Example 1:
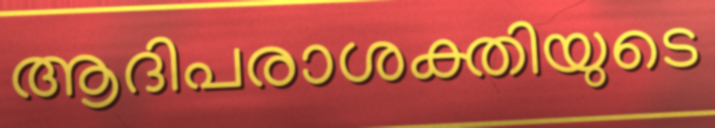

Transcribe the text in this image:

ആദിപരാശക്തിയുടെ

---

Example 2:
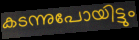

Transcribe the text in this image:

കടന്നുപോയിട്ടും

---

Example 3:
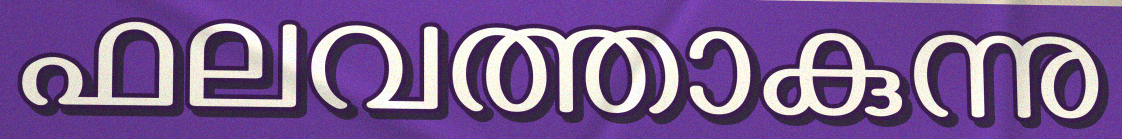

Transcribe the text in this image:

ഫലവത്താകുന്നു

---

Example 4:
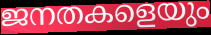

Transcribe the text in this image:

ജനതകളെയും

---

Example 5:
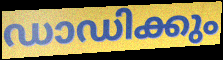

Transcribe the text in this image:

ഡാഡിക്കും